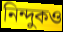
নিন্দুকও